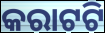
କରାଟଟି